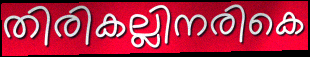
തിരികല്ലിനരികെ